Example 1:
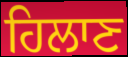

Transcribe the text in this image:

ਹਿਲਾਣ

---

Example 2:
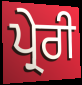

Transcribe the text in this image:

ਪ੍ਰੇਰੀ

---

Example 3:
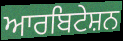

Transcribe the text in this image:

ਆਰਬਿਟੇਸ਼ਨ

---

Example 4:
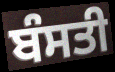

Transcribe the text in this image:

ਬੰਸਤੀ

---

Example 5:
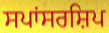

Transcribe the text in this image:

ਸਪਾਂਸਰਸ਼ਿਪ